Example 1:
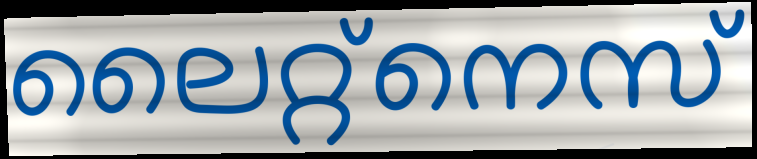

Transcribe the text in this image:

ലൈറ്റ്നെസ്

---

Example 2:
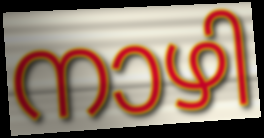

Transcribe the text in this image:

നാഴി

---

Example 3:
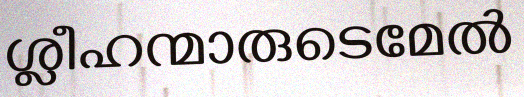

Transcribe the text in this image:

ശ്ലീഹന്മാരുടെമേൽ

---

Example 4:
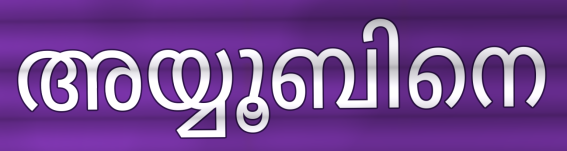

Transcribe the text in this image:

അയ്യൂബിനെ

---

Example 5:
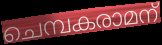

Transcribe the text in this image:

ചെമ്പകരാമന്